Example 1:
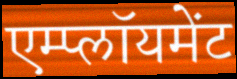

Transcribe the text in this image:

एम्प्लॉयमेंट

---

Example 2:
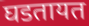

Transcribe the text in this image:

घडतायत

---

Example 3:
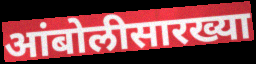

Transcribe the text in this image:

आंबोलीसारख्या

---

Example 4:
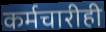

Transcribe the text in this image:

कर्मचारीही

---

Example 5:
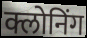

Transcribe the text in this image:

क्लोनिंग